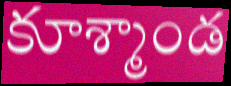
కూశ్మాండ